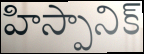
హిస్పానిక్